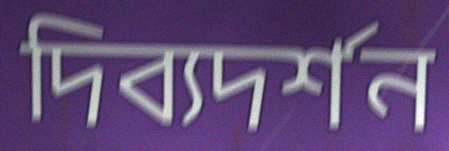
দিব্যদর্শন